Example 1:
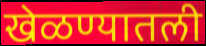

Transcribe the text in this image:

खेळण्यातली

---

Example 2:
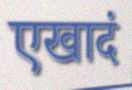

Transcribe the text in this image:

एखादं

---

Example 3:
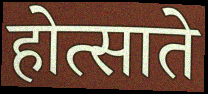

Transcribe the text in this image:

होत्साते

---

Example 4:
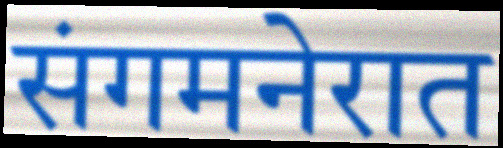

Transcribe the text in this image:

संगमनेरात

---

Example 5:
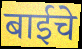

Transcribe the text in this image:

बाईचे